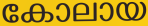
കോലായ